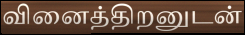
வினைத்திறனுடன்